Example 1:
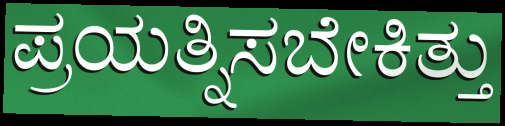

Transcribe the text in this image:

ಪ್ರಯತ್ನಿಸಬೇಕಿತ್ತು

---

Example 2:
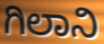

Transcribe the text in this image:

ಗಿಲಾನಿ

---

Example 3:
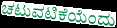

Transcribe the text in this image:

ಚಟುವಟಿಕೆಯೆಂದು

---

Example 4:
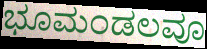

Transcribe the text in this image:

ಭೂಮಂಡಲವೂ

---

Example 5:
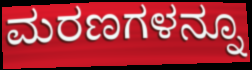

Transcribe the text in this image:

ಮರಣಗಳನ್ನೂ